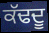
ਕੱਢਦੂ